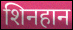
शिनहान